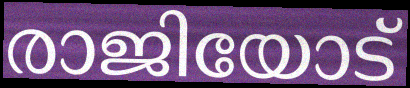
രാജിയോട്